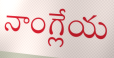
నాంగ్లేయ